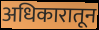
अधिकारातून